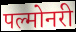
पल्मोनरी